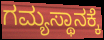
ಗಮ್ಯಸ್ಥಾನಕ್ಕೆ